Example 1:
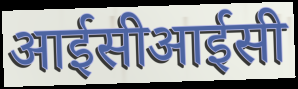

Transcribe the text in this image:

आईसीआईसी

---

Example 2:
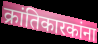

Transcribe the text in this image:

क्रांतिकारकांना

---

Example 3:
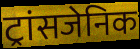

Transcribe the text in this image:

ट्रांसजेनिक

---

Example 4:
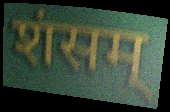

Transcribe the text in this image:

शंसम्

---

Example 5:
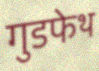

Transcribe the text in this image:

गुडफेथ